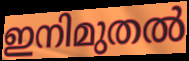
ഇനിമുതൽ